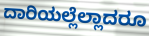
ದಾರಿಯಲ್ಲೆಲ್ಲಾದರೂ